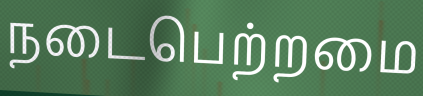
நடைபெற்றமை